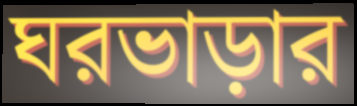
ঘরভাড়ার